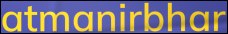
atmanirbhar